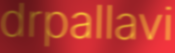
drpallavi